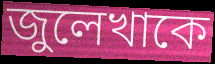
জুলেখাকে